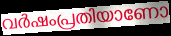
വർഷംപ്രതിയാണോ